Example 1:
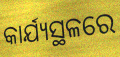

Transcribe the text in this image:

କାର୍ଯ୍ୟସ୍ଥଳରେ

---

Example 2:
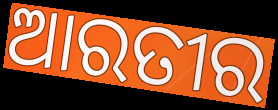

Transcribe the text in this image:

ଆରତୀର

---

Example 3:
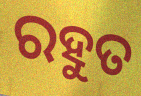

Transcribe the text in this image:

ରହୁତ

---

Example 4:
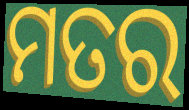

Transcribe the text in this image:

ମତର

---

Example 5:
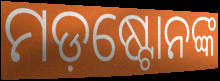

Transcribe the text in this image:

ମଡ଼ଷ୍ଟୋନଙ୍କ